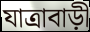
যাত্রাবাড়ী